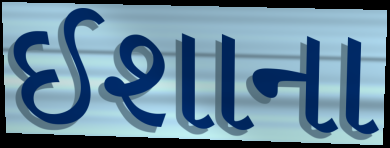
ઈશાના